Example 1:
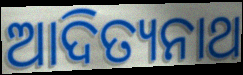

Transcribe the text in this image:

ଆଦିତ୍ୟନାଥ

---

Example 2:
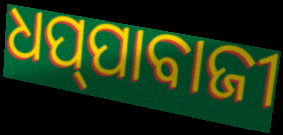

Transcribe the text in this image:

ଧପ୍‌ପାବାଜୀ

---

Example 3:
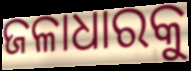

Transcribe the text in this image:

ଜଳାଧାରକୁ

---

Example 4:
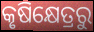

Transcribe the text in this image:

କୃଷିକ୍ଷେତ୍ରରୁ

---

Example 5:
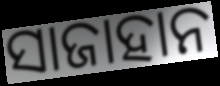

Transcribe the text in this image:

ସାଜାହାନ